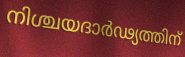
നിശ്ചയദാർഢ്യത്തിന്